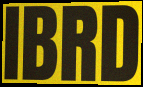
IBRD